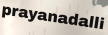
prayanadalli